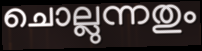
ചൊല്ലുന്നതും